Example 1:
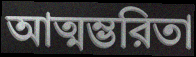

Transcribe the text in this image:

আত্মম্ভরিতা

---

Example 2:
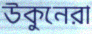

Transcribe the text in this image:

উকুনেরা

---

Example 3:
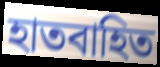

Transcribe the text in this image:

হাতবাহিত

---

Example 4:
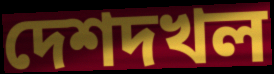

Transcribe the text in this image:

দেশদখল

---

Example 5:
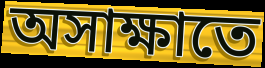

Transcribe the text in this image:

অসাক্ষাতে